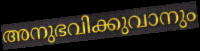
അനുഭവിക്കുവാനും